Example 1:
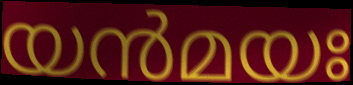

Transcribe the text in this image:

യൻമയഃ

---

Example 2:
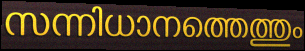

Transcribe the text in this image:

സന്നിധാനത്തെത്തും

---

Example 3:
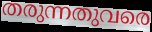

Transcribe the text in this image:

തരുന്നതുവരെ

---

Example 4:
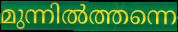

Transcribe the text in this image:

മുന്നിൽത്തന്നെ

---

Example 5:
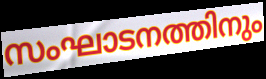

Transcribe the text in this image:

സംഘാടനത്തിനും